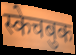
स्केचबुक